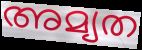
അമ്യത